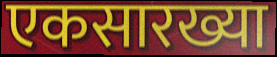
एकसारख्या